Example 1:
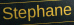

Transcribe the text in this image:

Stephane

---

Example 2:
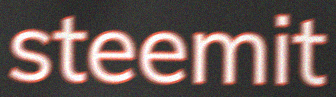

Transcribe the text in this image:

steemit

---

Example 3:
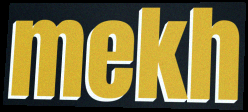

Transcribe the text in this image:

mekh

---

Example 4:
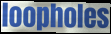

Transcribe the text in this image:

loopholes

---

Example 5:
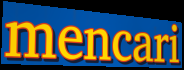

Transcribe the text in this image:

mencari